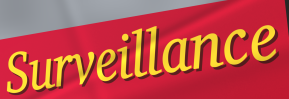
Surveillance